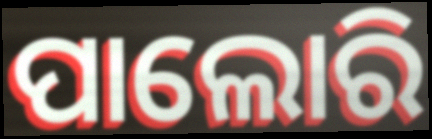
ପାଲୋରି